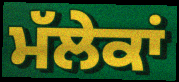
ਮੱਲੇਕਾਂ